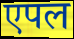
एपल